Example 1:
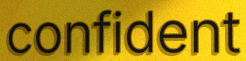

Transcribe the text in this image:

confident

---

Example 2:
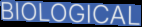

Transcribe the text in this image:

BIOLOGICAL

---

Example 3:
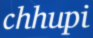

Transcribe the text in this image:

chhupi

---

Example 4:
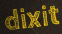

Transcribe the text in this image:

dixit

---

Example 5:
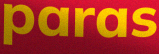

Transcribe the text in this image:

paras